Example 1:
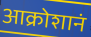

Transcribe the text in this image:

आक्रोशानं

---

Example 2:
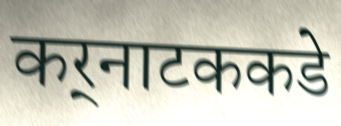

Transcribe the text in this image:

कर्नाटककडे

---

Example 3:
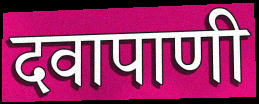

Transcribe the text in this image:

दवापाणी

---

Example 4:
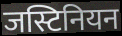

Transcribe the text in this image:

जस्टिनियन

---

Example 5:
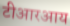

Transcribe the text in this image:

टीआरआय